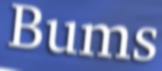
Bums